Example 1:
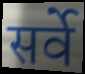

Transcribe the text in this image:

सर्वे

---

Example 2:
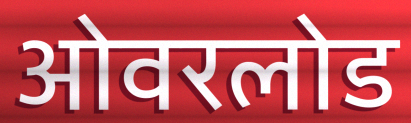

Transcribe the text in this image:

ओवरलोड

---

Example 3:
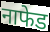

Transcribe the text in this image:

नाफेड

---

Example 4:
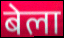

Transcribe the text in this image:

बेला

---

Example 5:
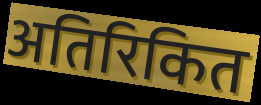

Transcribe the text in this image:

अतिरिकित